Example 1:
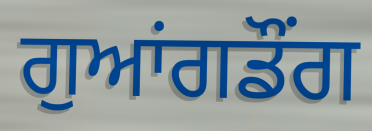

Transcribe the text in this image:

ਗੁਆਂਗਡੌਂਗ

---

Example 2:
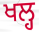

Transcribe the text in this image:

ਖਲ੍ਹ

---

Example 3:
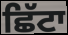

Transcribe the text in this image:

ਛਿੱਟਾ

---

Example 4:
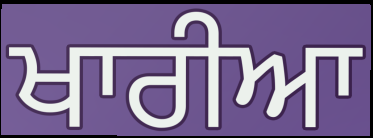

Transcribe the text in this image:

ਖਾਰੀਆ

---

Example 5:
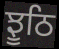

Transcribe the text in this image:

ਝੂਠਿ